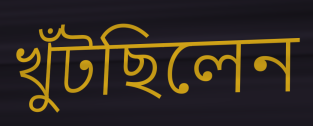
খুঁটছিলেন